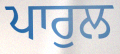
ਪਾਰੁਲ